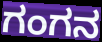
ಗಂಗನ